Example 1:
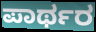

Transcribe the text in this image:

ಪಾರ್ಥರ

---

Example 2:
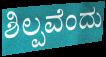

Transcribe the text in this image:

ಶಿಲ್ಪವೆಂದು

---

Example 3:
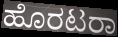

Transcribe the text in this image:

ಹೊರಟರಾ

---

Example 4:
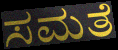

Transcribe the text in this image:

ಸಮತೆ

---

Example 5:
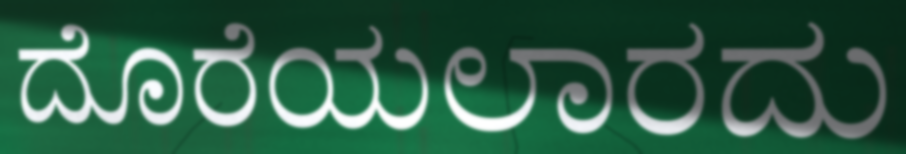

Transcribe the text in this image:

ದೊರೆಯಲಾರದು